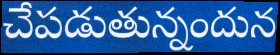
చేపడుతున్నందున